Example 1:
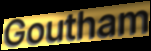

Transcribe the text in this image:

Goutham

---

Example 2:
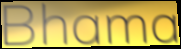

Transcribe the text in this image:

Bhama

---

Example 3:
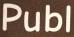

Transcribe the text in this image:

Publ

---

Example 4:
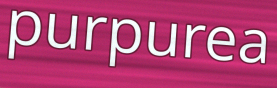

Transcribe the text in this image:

purpurea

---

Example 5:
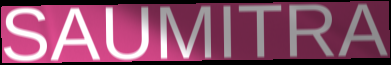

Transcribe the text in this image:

SAUMITRA